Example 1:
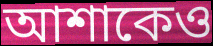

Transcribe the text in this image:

আশাকেও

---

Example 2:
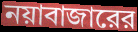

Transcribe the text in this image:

নয়াবাজারের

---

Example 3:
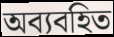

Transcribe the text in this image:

অব্যবহিত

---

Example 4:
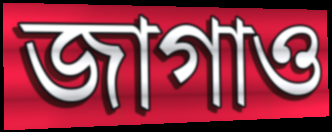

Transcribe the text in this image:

জাগাও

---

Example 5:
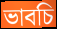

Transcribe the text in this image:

ভাবচি